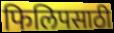
फिलिपसाठी